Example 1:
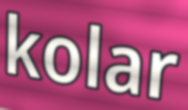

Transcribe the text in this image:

kolar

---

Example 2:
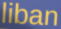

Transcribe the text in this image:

liban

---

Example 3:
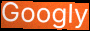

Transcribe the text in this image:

Googly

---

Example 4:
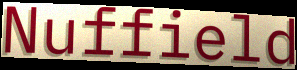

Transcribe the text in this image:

Nuffield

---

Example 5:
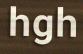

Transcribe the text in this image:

hgh